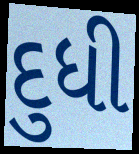
દુધી